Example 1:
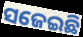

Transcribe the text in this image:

ସଜେଇଛି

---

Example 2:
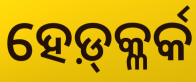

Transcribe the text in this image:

ହେଡ଼୍‍କ୍ଳର୍କ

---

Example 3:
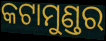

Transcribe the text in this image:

କଟାମୁଣ୍ଡର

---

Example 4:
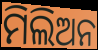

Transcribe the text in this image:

ମିଲିଅନ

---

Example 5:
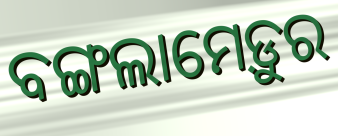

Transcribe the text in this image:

ବଙ୍ଗଲାମେଡ଼ୁର